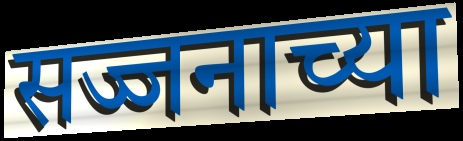
सज्जनाच्या